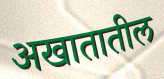
अखातातील